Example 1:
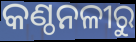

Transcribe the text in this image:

କଣ୍ଠନଳୀରୁ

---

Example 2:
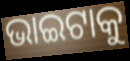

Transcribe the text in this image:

ଭାଇଟାକୁ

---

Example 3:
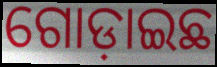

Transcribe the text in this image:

ଗୋଡ଼ାଇଛ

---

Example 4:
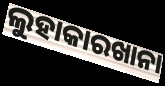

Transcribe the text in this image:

ଲୁହାକାରଖାନା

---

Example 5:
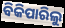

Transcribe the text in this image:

ବିକିପାରିଲୁ